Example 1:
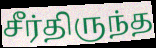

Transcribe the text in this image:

சீர்திருந்த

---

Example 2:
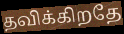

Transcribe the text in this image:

தவிக்கிறதே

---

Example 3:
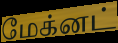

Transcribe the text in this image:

மேக்னட்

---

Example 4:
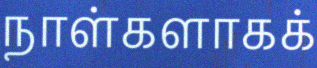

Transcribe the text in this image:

நாள்களாகக்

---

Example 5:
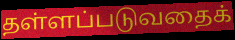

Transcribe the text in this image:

தள்ளப்படுவதைக்